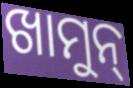
ଖାମୁନ୍